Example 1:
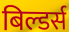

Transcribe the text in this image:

बिल्डर्स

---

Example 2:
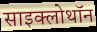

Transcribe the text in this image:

साइक्लोथॉन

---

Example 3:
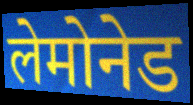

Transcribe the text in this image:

लेमोनेड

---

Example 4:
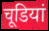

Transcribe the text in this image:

चूडियां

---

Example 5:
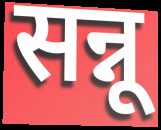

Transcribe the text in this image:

सन्नू